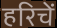
हरिचें